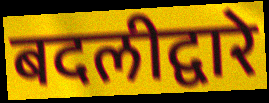
बदलीद्वारे